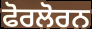
ਫੋਰਲੋਰਨ